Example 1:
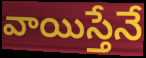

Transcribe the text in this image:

వాయిస్తేనే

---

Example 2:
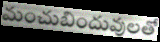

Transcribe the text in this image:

మంచుబిందువులతో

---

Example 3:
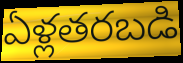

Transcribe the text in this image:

ఏళ్లతరబడి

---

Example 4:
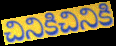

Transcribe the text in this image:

చినికిచినికి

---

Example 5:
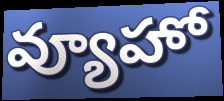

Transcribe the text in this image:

వ్యూహో